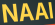
NAAI